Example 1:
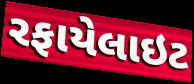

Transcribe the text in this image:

રફાયેલાઇટ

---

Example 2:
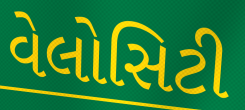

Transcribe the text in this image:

વેલોસિટી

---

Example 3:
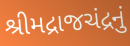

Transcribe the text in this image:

શ્રીમદ્રાજચંદ્રનું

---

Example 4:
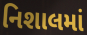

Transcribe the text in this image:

નિશાલમાં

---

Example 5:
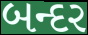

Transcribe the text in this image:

બન્દર